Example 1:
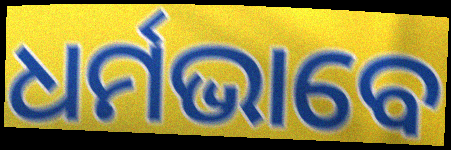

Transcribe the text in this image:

ଧର୍ମଭାବେ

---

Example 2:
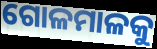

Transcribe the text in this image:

ଗୋଳମାଳକୁ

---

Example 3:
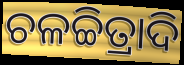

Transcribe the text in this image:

ଚଳଚ୍ଚିତ୍ରାଦି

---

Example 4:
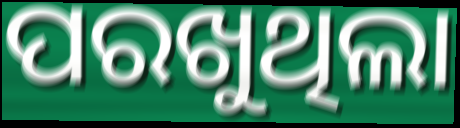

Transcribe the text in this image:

ପରଖୁଥିଲା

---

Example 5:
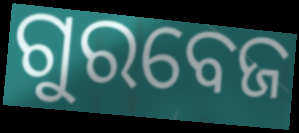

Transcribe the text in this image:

ଗୁରବେଜ